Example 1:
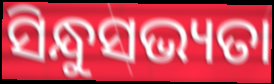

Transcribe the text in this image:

ସିନ୍ଧୁସଭ୍ୟତା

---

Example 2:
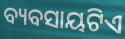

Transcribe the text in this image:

ବ୍ୟବସାୟଟିଏ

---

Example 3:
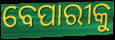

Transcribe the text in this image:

ବେପାରୀକୁ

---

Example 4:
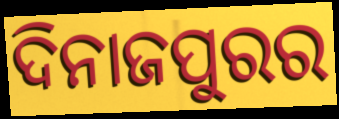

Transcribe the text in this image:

ଦିନାଜପୁରର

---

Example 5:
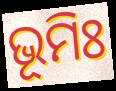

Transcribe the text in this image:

ଭୂମିଃ